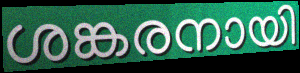
ശങ്കരനായി